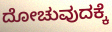
ದೋಚುವುದಕ್ಕೆ